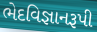
ભેદવિજ્ઞાનરૂપી